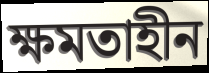
ক্ষমতাহীন